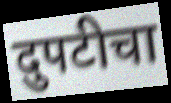
दुपटीचा